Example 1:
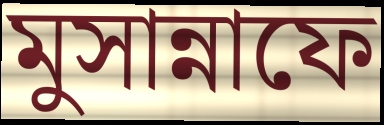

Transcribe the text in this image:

মুসান্নাফে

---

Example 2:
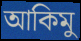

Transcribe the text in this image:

আকিমু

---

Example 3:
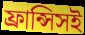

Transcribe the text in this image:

ফ্রান্সিসই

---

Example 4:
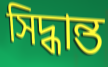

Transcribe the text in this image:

সিদ্ধান্ত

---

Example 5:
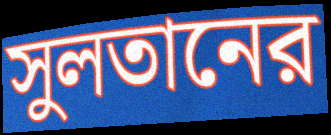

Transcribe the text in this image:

সুলতানের